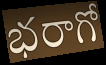
భరాగో